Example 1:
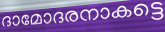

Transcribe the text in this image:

ദാമോദരനാകട്ടെ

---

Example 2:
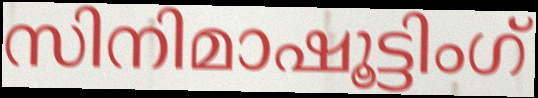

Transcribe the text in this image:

സിനിമാഷൂട്ടിംഗ്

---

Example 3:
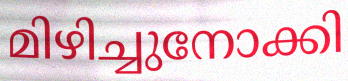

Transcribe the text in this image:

മിഴിച്ചുനോക്കി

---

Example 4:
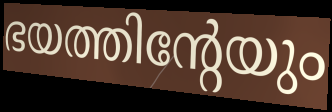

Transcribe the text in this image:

ഭയത്തിന്റേയും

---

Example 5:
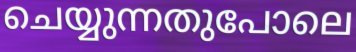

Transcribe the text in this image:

ചെയ്യുന്നതുപോലെ